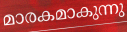
മാരകമാകുന്നു